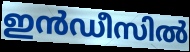
ഇൻഡീസിൽ